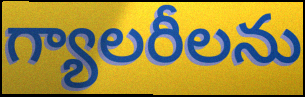
గ్యాలరీలను